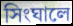
সিংঘালে